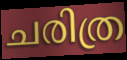
ചരിത്ര